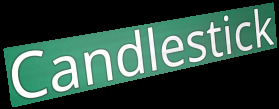
Candlestick